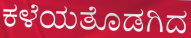
ಕಳೆಯತೊಡಗಿದ